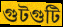
গুটগুটি